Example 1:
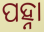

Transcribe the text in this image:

ପହ୍ନା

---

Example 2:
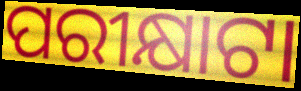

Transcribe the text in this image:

ପରୀକ୍ଷାଟା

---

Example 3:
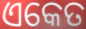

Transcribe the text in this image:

ଏକେତ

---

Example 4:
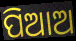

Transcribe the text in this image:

ପିଆଅ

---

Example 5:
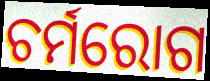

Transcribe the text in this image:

ଚର୍ମରୋଗ